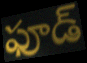
ఫూడ్